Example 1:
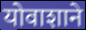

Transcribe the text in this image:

योवाशाने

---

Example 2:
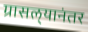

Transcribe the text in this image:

ग्रासल्यानंतर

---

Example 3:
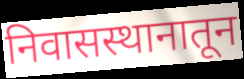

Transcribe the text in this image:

निवासस्थानातून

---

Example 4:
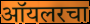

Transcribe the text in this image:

ऑयलरचा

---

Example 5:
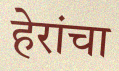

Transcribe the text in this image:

हेरांचा